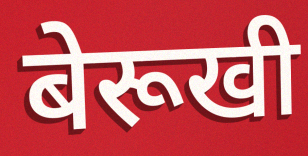
बेरूखी